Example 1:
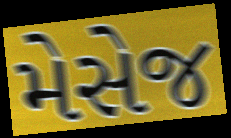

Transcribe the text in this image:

મેસેજ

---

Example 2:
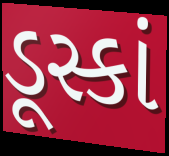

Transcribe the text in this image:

ડૂસ્કાં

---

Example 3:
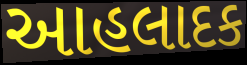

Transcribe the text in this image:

આહલાદક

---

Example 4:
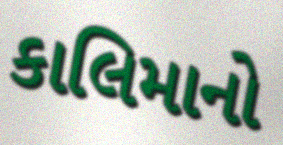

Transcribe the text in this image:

કાલિમાનો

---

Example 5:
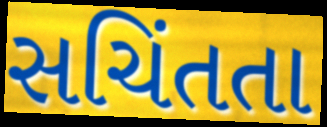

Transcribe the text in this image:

સચિંતતા